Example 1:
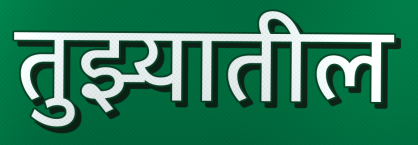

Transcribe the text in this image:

तुझ्यातील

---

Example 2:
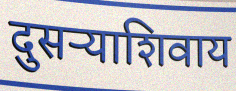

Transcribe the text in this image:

दुसऱ्याशिवाय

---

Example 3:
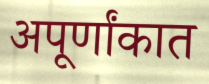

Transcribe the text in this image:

अपूर्णांकात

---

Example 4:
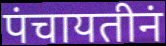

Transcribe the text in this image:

पंचायतीनं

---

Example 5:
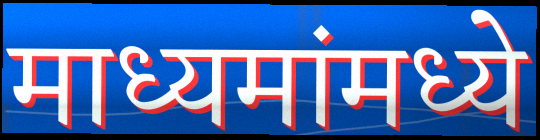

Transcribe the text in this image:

माध्यमांमध्ये